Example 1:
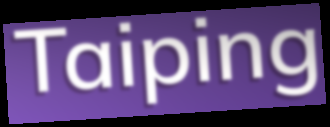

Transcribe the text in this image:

Taiping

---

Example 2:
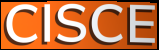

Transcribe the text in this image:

CISCE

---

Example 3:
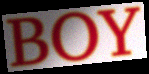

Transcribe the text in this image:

BOY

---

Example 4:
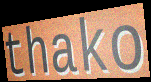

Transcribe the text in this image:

thako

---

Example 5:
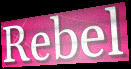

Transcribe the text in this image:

Rebel